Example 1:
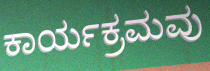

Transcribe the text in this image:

ಕಾರ್ಯಕ್ರಮವು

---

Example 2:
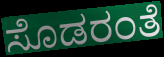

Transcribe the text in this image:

ಸೊಡರಂತೆ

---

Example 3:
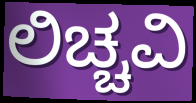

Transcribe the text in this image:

ಲಿಚ್ಚವಿ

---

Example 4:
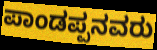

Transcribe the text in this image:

ಪಾಂಡಪ್ಪನವರು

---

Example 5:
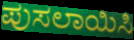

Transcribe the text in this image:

ಪುಸಲಾಯಿಸಿ